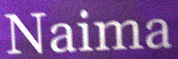
Naima